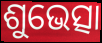
ଶୁଭେତ୍ସା